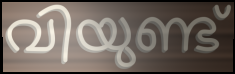
വിയുണ്ട്